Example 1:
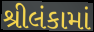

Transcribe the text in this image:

શ્રીલંકામાં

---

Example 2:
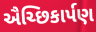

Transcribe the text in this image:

ઐચ્છિકાર્પણ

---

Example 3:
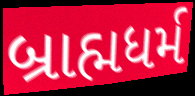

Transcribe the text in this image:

બ્રાહ્મધર્મ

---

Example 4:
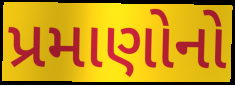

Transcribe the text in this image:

પ્રમાણોનો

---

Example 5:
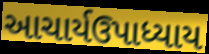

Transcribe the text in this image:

આચાર્યઉપાધ્યાય